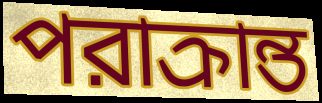
পরাক্রান্ত